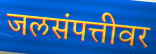
जलसंपत्तीवर